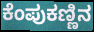
ಕೆಂಪುಕಣ್ಣಿನ